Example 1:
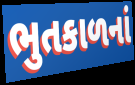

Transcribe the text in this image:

ભુતકાળનાં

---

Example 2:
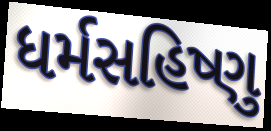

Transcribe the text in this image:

ધર્મસહિષ્ણુ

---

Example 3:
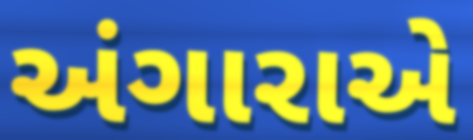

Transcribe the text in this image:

અંગારાએ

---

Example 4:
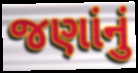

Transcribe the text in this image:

જણાંનું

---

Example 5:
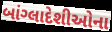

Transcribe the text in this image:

બાંગ્લાદેશીઓના